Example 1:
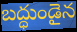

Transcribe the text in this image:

బద్ధుండైన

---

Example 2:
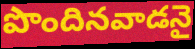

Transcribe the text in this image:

పొందినవాడనై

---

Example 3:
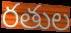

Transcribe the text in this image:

రతుల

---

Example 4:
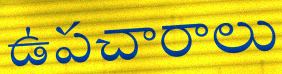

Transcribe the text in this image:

ఉపచారాలు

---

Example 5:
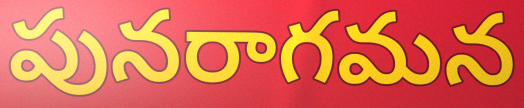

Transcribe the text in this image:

పునరాగమన